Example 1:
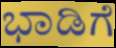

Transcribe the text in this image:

ಭಾಡಿಗೆ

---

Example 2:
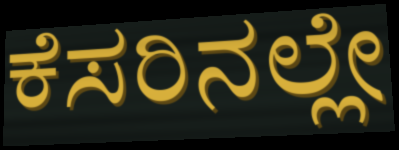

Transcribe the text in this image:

ಕೆಸರಿನಲ್ಲೇ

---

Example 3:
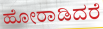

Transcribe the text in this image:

ಹೋರಾಡಿದರೆ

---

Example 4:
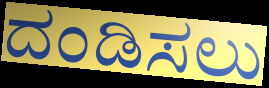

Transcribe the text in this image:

ದಂಡಿಸಲು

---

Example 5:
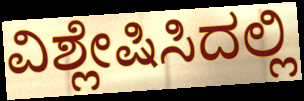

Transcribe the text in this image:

ವಿಶ್ಲೇಷಿಸಿದಲ್ಲಿ